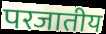
परजातीय